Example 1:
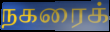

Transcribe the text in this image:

நகரைக்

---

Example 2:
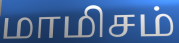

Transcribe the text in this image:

மாமிசம்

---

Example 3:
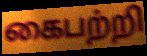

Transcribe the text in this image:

கைபற்றி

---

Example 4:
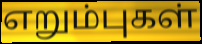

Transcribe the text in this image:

எறும்புகள்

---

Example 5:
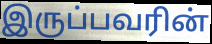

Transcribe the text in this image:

இருப்பவரின்